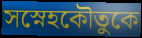
সস্নেহকৌতুকে